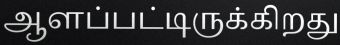
ஆளப்பட்டிருக்கிறது